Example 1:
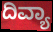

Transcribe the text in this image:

ದಿವ್ಯಾ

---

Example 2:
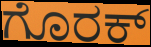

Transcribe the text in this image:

ಗೊರಕ್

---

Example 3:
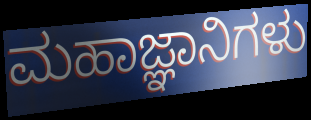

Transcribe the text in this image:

ಮಹಾಜ್ಞಾನಿಗಳು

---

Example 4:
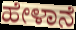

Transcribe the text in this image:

ಹೇಳಾನೆ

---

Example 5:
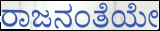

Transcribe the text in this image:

ರಾಜನಂತೆಯೇ